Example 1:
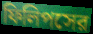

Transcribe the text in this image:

ফিলিপসের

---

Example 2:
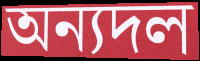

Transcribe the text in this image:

অন্যদল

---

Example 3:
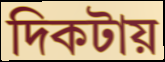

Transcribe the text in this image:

দিকটায়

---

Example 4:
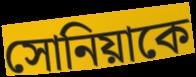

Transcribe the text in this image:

সোনিয়াকে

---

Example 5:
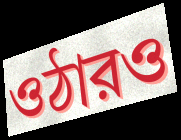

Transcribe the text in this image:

ওঠারও